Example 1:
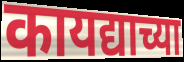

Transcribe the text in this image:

कायद्याच्या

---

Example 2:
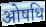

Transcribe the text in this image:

ओषधि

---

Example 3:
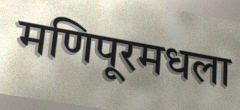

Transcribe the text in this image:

मणिपूरमधला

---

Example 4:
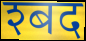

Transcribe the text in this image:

श्बद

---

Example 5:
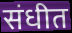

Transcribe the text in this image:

संधीत